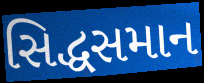
સિદ્ધસમાન